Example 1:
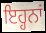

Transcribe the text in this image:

ਇਹ੍ਹਨਾਂ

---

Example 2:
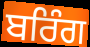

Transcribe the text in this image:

ਬਰਿੰਗ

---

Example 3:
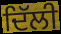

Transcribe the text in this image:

ਦਿੱਲੀ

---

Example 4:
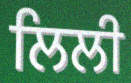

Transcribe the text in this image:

ਲਿਲੀ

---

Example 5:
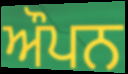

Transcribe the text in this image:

ਔਪਨ